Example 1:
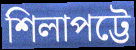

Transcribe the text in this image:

শিলাপট্টে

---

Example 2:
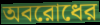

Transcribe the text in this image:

অবরোধের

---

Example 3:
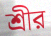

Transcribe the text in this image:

শ্রীর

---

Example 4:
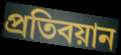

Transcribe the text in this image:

প্রতিবয়ান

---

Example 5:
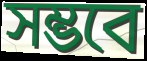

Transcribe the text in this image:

সম্ভবে